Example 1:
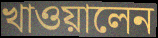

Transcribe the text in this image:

খাওয়ালেন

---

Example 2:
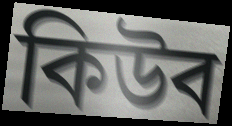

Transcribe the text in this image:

কিউব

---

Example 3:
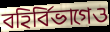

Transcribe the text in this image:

বহির্বিভাগেও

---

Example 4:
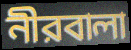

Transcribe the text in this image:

নীরবালা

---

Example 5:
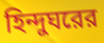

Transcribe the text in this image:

হিন্দুঘরের